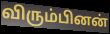
விரும்பினன்